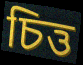
চিত্ত